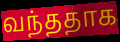
வந்ததாக